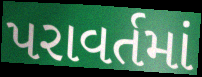
પરાવર્તમાં